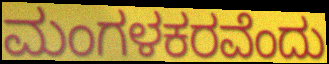
ಮಂಗಳಕರವೆಂದು